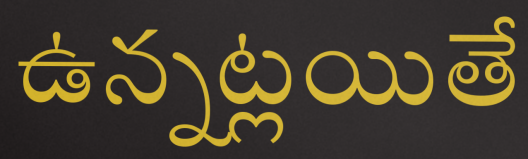
ఉన్నట్లయితే